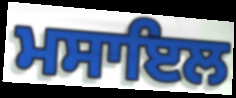
ਮਸਾਇਲ